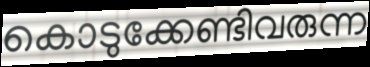
കൊടുക്കേണ്ടിവരുന്ന